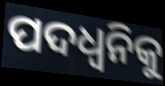
ପଦଧ୍ୱନିକୁ